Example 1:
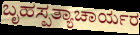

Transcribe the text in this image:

ಬೃಹಸ್ಪತ್ಯಾಚಾರ್ಯರ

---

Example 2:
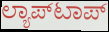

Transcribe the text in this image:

ಲ್ಯಾಪ್‍ಟಾಪ್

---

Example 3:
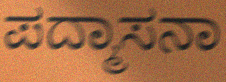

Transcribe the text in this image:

ಪದ್ಮಾಸನಾ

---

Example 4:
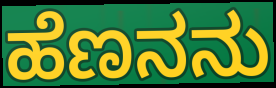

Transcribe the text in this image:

ಹೆಣನನು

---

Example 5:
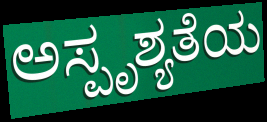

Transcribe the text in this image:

ಅಸ್ಪೃಶ್ಯತೆಯ